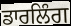
ਡਾਰਲਿੰਗ